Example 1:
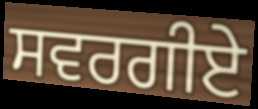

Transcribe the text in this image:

ਸਵਰਗੀਏ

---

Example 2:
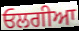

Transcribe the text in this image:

ਓਲਗੀਆ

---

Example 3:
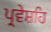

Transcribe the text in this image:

ਪ੍ਰਵੇਸ਼ਹਿ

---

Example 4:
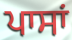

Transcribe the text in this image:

ਪਾਸਾਂ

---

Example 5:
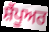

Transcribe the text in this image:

ਸ਼ੈਂਪੂਅਰ